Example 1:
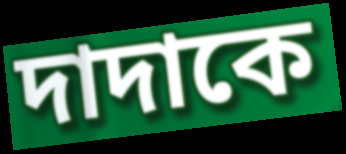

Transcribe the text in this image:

দাদাকে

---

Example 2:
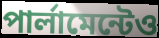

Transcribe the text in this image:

পার্লামেন্টেও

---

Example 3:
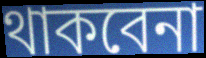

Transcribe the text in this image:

থাকবেনা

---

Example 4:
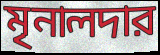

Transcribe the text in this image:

মৃনালদার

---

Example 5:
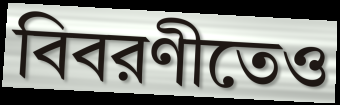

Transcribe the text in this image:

বিবরণীতেও